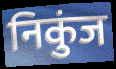
निकुंज